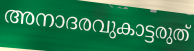
അനാദരവുകാട്ടരുത്